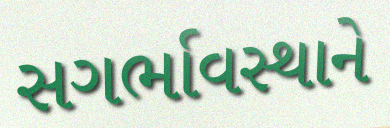
સગર્ભાવસ્થાને